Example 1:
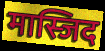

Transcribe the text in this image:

मास्जिद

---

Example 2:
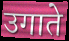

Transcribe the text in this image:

उगाते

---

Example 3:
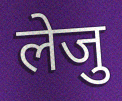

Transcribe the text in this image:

लेजु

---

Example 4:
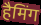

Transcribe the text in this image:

हैमिंग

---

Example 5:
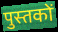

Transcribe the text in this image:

पुस्तकों